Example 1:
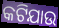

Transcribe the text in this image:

କଟିଯାଉ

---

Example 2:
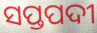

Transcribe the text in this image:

ସପ୍ତପଦୀ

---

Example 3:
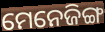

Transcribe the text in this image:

ମେନେଜିଙ୍ଗ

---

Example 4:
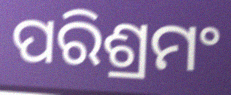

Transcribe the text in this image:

ପରିଶ୍ରମଂ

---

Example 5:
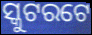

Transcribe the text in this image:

ସ୍କୁଟରଟେ